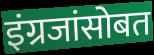
इंग्रजांसोबत